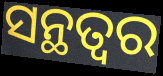
ସନ୍ଥତ୍ବର